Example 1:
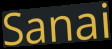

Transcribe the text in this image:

Sanai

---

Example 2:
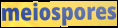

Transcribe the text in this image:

meiospores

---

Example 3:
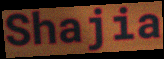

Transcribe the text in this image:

Shajia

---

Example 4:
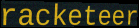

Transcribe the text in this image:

racketeer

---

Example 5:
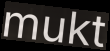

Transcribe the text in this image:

mukt